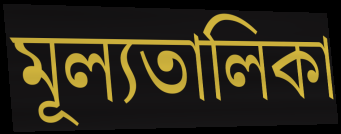
মূল্যতালিকা